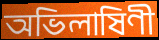
অভিলাষিণী